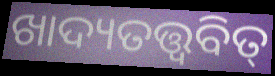
ଖାଦ୍ୟତତ୍ତ୍ୱବିତ୍